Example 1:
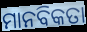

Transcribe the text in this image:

ମାନବିକତା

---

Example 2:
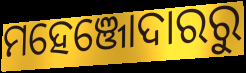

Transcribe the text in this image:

ମହେଞ୍ଜୋଦାରରୁ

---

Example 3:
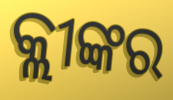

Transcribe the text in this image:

କ୍ଲୀଙ୍କର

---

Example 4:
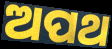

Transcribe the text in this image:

ଅପଥ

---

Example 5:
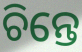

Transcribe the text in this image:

ଚିନ୍ତେ